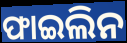
ଫାଇଲିନ